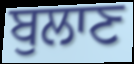
ਬੁਲਾਣ